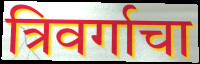
त्रिवर्गाचा